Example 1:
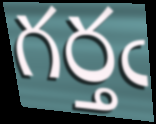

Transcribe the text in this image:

గర్తఁ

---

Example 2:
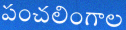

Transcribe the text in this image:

పంచలింగాల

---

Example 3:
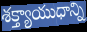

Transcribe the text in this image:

శక్త్యాయుధాన్ని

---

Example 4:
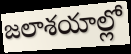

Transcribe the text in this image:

జలాశయాల్లో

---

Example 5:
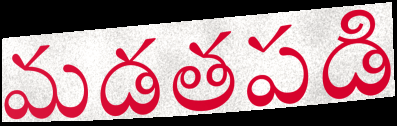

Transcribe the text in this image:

మడతపడి